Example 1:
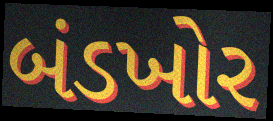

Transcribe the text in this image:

બંડખોર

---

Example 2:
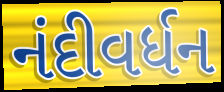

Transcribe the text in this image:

નંદીવર્ધન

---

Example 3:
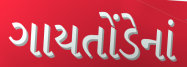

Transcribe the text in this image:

ગાયતોંડેનાં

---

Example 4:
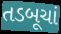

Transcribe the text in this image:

તડબૂચાં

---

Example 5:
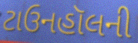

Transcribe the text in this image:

ટાઉનહૉલની